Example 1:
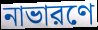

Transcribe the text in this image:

নাভারণে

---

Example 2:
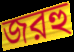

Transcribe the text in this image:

জরহু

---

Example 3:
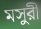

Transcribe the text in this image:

মসুরী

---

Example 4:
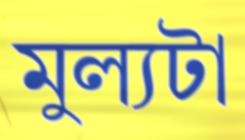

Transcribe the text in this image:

মুল্যটা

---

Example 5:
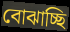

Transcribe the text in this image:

বোঝাচ্ছি